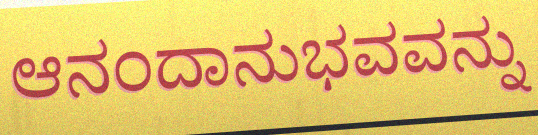
ಆನಂದಾನುಭವವನ್ನು